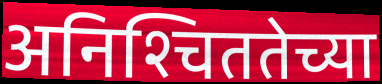
अनिश्चिततेच्या